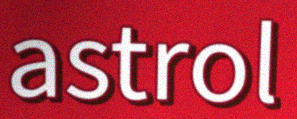
astrol